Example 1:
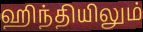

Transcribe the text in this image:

ஹிந்தியிலும்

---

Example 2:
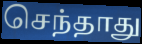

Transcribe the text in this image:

செந்தாது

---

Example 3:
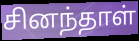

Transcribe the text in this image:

சினந்தாள்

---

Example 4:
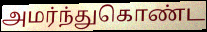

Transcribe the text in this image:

அமர்ந்துகொண்ட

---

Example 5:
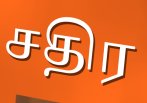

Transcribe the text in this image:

சதிர